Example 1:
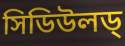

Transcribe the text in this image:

সিডিউলড্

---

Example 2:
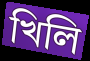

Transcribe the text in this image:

খিলি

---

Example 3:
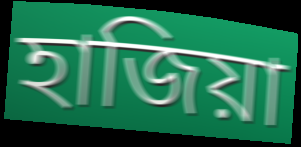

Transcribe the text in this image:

হাজিয়া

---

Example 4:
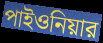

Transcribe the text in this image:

পাইওনিয়ার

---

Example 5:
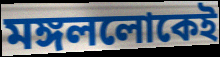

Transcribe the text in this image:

মঙ্গললোকেই